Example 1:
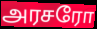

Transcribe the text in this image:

அரசரோ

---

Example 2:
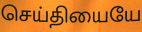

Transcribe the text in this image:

செய்தியையே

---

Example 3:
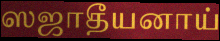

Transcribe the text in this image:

ஸஜாதீயனாய்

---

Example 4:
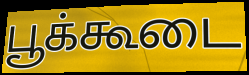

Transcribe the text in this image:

பூக்கூடை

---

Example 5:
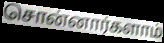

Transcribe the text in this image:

சொன்னார்களாம்